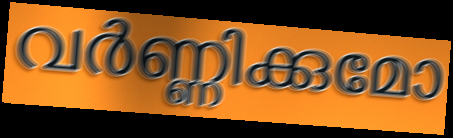
വർണ്ണിക്കുമോ